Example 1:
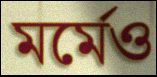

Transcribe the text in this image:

মর্মেও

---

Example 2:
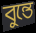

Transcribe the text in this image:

বুন্তে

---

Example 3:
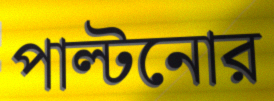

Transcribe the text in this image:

পাল্টনোর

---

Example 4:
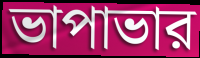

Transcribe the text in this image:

ভাপাভার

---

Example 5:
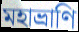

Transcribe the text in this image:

মহাভ্রাণি